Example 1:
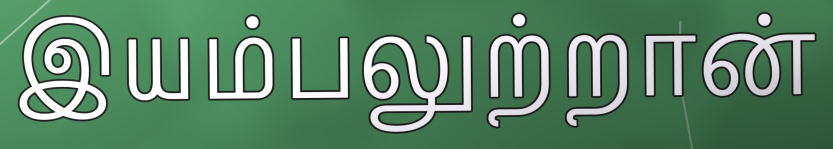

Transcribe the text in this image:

இயம்பலுற்றான்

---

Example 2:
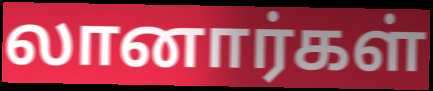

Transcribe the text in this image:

லானார்கள்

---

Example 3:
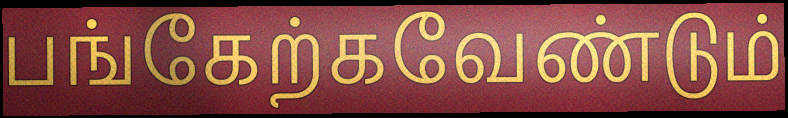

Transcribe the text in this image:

பங்கேற்கவேண்டும்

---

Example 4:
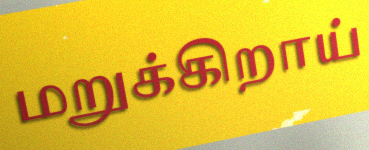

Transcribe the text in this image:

மறுக்கிறாய்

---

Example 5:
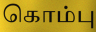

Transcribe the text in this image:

கொம்பு